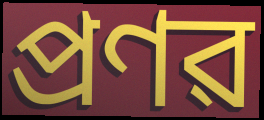
প্ৰণৱ